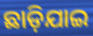
ଛାଡ଼ିଯାଇ